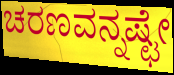
ಚರಣವನ್ನಷ್ಟೇ